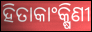
ହିତାକାଂକ୍ଷିଣୀ